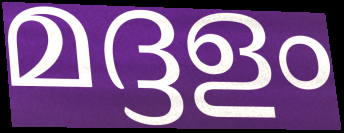
മദ്ദളം